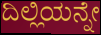
ದಿಲ್ಲಿಯನ್ನೇ